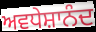
ਅਵਧੇਸ਼ਾਨੰਦ